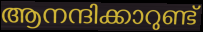
ആനന്ദിക്കാറുണ്ട്